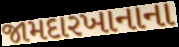
જામદારખાનાના